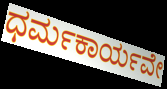
ಧರ್ಮಕಾರ್ಯವೇ